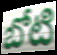
బోటి